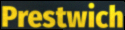
Prestwich